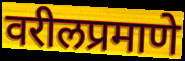
वरीलप्रमाणे